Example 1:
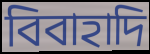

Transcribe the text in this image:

বিবাহাদি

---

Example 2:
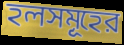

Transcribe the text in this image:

হলসমূহের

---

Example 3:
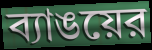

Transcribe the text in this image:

ব্যাঙয়ের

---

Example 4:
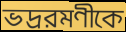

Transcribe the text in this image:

ভদ্ররমণীকে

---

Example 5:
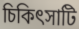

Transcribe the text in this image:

চিকিৎসাটি